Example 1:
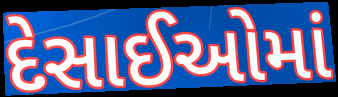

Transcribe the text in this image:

દેસાઈઓમાં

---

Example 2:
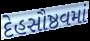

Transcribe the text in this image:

દેહસૌષ્ઠવમાં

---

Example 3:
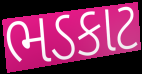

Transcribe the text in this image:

ભડકાટ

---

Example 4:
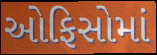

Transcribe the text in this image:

ઓફિસોમાં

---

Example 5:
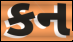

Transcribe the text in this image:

કન